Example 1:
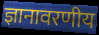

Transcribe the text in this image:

ज्ञानावरणीय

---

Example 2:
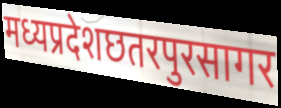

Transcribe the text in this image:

मध्यप्रदेशछतरपुरसागर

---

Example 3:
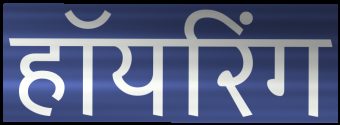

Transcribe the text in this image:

हॉयरिंग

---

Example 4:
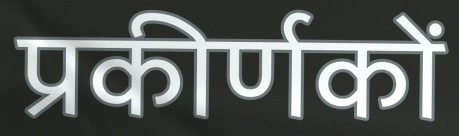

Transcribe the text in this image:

प्रकीर्णकों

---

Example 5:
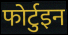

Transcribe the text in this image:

फोर्टुइन